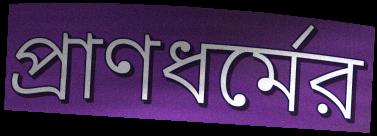
প্রাণধর্মের